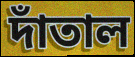
দাঁতাল